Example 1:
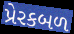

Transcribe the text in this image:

પ્રેરકબળ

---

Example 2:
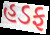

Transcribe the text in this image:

હડફ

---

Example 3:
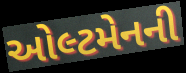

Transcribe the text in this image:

ઓલ્ટમેનની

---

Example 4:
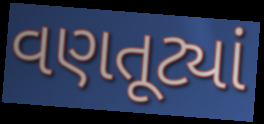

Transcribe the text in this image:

વણતૂટ્યાં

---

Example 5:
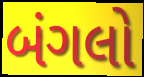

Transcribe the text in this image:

બંગલો